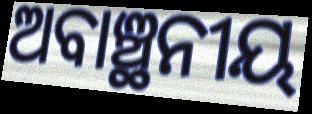
ଅବାଞ୍ଛନୀୟ